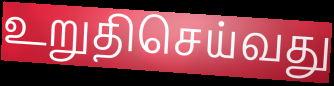
உறுதிசெய்வது